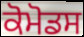
ਕੋਮੋਡਸ